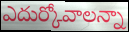
ఎదుర్కోవాలన్నా